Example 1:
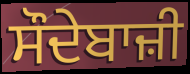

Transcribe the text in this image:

ਸੌਦੇਬਾਜ਼ੀ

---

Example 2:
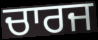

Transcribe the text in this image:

ਚਾਰਜ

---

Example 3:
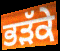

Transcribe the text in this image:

ਭੜੱਕੇ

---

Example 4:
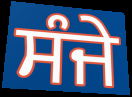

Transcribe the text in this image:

ਸੰਜੇ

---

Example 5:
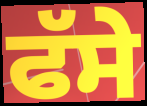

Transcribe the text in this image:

ਫੱਸੇ